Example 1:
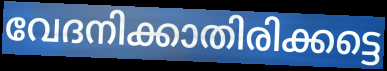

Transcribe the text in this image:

വേദനിക്കാതിരിക്കട്ടെ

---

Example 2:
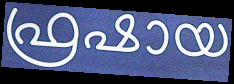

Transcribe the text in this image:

ഫ്രഷായ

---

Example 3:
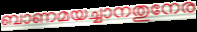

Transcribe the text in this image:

ബാണമയച്ചാനതുനേര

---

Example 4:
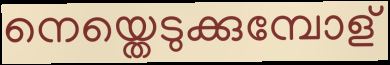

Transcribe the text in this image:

നെയ്തെടുക്കുമ്പോള്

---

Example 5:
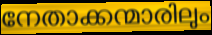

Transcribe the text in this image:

നേതാക്കന്മാരിലും